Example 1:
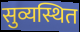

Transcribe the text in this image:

सुव्यस्थित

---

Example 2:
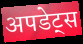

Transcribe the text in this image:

अपडेट्स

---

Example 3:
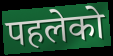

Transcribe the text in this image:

पहलेको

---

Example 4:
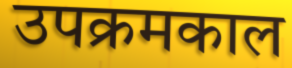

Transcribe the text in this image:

उपक्रमकाल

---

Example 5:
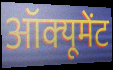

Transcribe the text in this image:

ऑक्यूमेंट